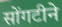
सोंगटीने